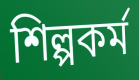
শিল্পকৰ্ম